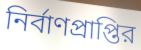
নির্বাণপ্রাপ্তির